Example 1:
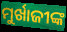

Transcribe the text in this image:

ମୁର୍ଖାଜୀଙ୍କ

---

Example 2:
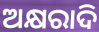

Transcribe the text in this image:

ଅକ୍ଷରାଦି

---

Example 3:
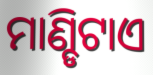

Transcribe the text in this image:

ମାଣ୍ଡିଟାଏ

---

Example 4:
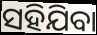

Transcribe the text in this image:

ସହିଯିବା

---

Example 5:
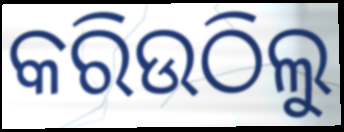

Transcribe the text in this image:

କରିଉଠିଲୁ